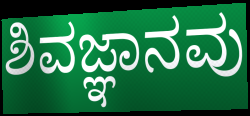
ಶಿವಜ್ಞಾನವು